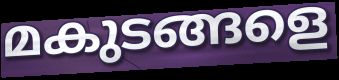
മകുടങ്ങളെ